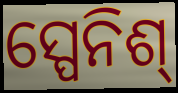
ସ୍ପେନିଶ୍